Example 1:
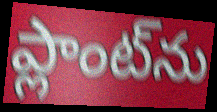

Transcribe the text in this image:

ప్లాంట్‌ను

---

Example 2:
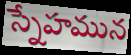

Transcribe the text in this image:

స్నేహమున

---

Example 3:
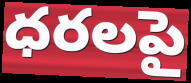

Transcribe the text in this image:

ధరలపై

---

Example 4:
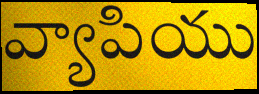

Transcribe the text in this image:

వ్యాపియు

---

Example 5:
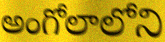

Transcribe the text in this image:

అంగోలాలోని